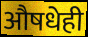
औषधेही